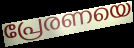
പ്രേരണയെ